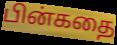
பின்கதை